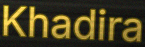
Khadira